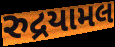
રુદ્રયામલ